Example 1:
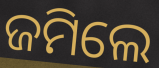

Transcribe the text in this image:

ଜମିଲେ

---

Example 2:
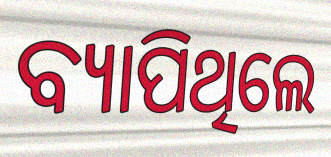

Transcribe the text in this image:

ବ୍ୟାପିଥିଲେ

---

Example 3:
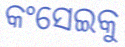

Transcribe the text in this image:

କଂସେଇକୁ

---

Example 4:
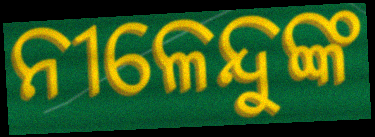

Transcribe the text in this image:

ନୀଳେନ୍ଦୁଙ୍କ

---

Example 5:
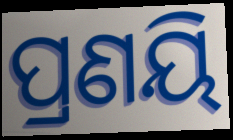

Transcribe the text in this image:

ପ୍ରଣୟି